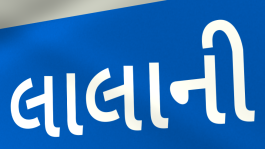
લાલાની